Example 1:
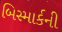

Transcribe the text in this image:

બિસ્માર્કની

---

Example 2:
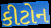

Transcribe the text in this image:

કીટોન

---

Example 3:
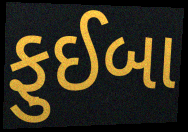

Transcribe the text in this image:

ફુઈબા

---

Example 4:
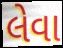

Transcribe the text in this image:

લેવા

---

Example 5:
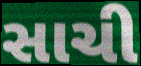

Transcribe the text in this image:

સાચી